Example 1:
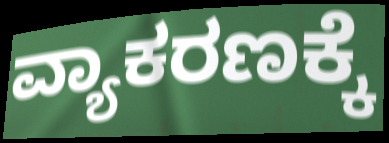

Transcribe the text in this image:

ವ್ಯಾಕರಣಕ್ಕೆ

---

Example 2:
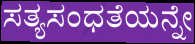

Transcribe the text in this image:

ಸತ್ಯಸಂಧತೆಯನ್ನೇ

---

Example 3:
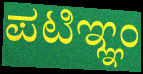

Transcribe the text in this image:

ಪಟಿಞ್ಞಂ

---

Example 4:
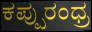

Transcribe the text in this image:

ಕಪ್ಪುರಂಧ್ರ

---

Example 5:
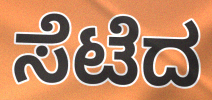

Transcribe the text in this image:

ಸೆಟೆದ